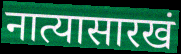
नात्यासारखं